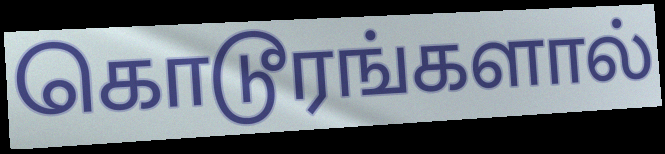
கொடூரங்களால்